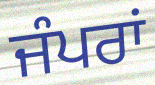
ਜੰਪਰਾਂ